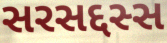
સરસદ્દસ્સ